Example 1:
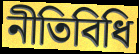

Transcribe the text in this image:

নীতিবিধি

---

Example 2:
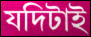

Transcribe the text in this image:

যদিটাই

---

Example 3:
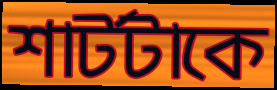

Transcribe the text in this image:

শার্টটাকে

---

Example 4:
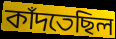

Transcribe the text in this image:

কাঁদতেছিল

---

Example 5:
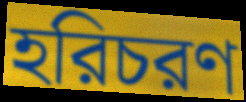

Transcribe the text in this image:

হরিচরণ